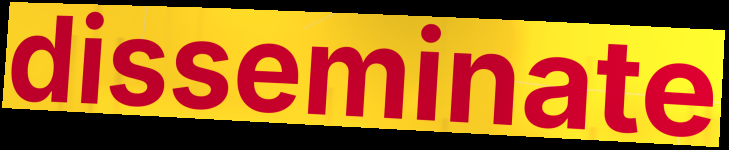
disseminate